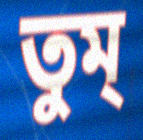
তুম্